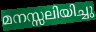
മനസ്സലിയിച്ചു